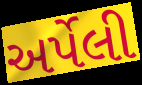
અર્પેલી